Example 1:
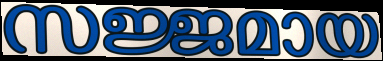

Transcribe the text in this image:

സജ്ജമായ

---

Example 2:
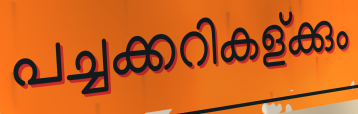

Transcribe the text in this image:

പച്ചക്കറികള്ക്കും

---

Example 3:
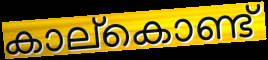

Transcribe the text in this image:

കാല്കൊണ്ട്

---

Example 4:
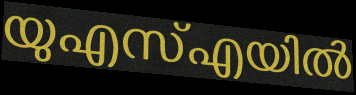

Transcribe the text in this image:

യുഎസ്എയിൽ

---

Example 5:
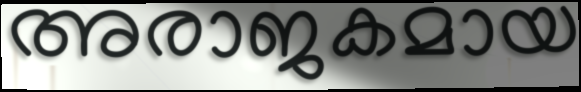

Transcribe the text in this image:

അരാജകമായ